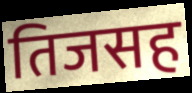
तिजसह